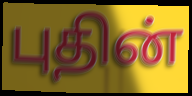
புதின்